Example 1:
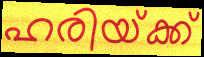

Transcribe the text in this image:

ഹരിയ്‌ക്ക്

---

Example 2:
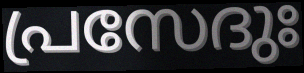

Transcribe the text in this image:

പ്രസേദുഃ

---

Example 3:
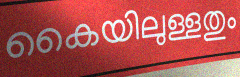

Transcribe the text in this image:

കൈയിലുള്ളതും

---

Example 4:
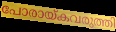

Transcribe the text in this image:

പോരായ്കവരുത്തി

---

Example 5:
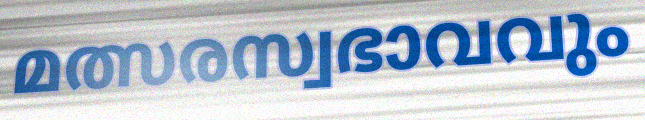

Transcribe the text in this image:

മത്സരസ്വഭാവവും